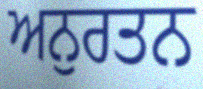
ਅਨੁਰਤਨ